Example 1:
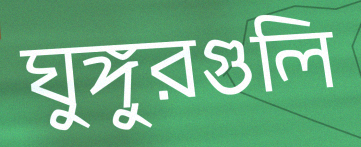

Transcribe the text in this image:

ঘুঙ্গুরগুলি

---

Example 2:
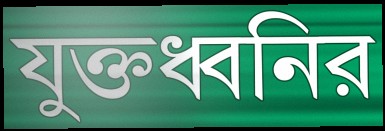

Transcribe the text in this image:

যুক্তধ্বনির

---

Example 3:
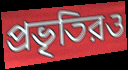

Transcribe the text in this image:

প্রভৃতিরও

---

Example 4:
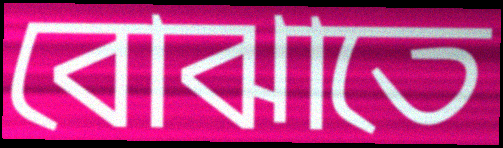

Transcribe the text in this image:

বোঝাতে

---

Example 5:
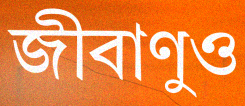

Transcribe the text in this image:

জীবাণুও